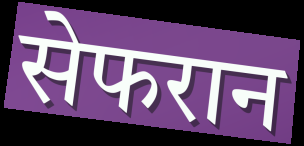
सेफरान